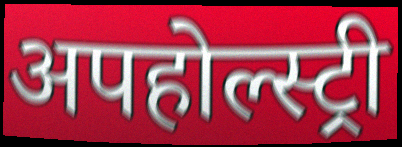
अपहोल्स्ट्री